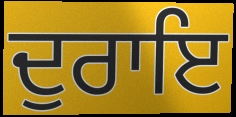
ਦੁਰਾਇ